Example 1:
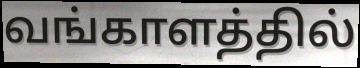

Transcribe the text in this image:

வங்காளத்தில்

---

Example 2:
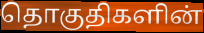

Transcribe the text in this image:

தொகுதிகளின்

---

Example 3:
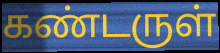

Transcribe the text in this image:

கண்டருள்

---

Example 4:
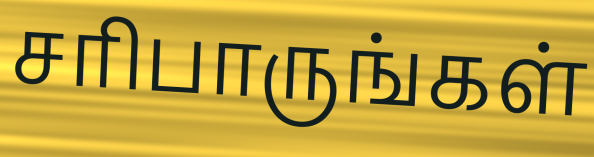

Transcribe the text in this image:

சரிபாருங்கள்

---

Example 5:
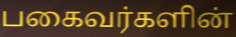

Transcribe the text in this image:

பகைவர்களின்